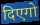
दिएगो